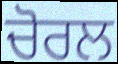
ਚੋਰਲ